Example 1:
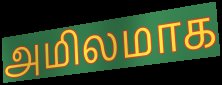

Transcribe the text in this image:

அமிலமாக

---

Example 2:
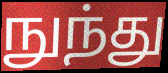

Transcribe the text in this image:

நுந்து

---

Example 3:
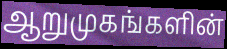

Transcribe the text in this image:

ஆறுமுகங்களின்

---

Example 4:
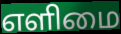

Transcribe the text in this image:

எளிமை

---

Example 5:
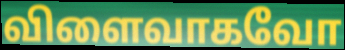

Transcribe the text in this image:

விளைவாகவோ